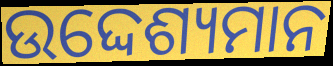
ଉଦ୍ଦେଶ୍ୟମାନ